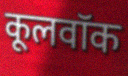
कूलवॉक